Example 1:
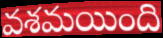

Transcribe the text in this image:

వశమయింది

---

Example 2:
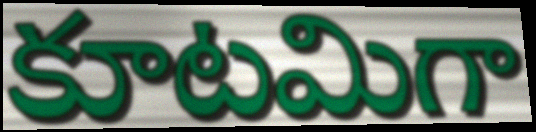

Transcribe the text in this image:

కూటమిగా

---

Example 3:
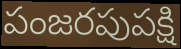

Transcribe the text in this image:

పంజరపుపక్షి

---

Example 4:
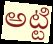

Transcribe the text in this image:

అట్టి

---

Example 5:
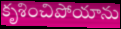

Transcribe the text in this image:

కృశించిపోయాను